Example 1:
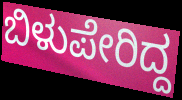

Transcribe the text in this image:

ಬಿಳುಪೇರಿದ್ದ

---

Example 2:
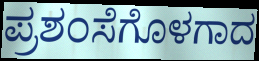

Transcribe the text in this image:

ಪ್ರಶಂಸೆಗೊಳಗಾದ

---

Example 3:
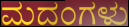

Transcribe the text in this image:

ಮದಂಗಳು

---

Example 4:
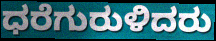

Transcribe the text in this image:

ಧರೆಗುರುಳಿದರು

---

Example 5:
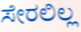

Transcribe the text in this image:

ಸೇರಲಿಲ್ಲ